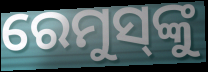
ରେମୁସ୍‌ଙ୍କୁ